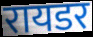
रायडर